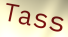
Tass